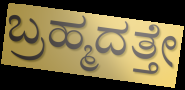
ಬ್ರಹ್ಮದತ್ತೇ